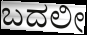
ಬದಲೀ